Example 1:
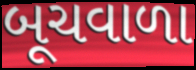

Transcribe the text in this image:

બૂચવાળા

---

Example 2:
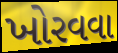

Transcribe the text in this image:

ખોરવવા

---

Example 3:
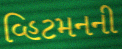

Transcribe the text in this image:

વ્હિટમનની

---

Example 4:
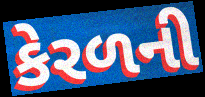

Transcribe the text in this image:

કેરળની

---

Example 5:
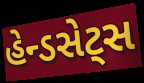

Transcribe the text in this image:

હેન્ડસેટ્સ